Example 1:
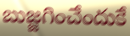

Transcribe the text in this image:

బుజ్జగించేందుకే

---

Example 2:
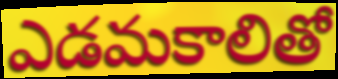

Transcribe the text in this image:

ఎడమకాలితో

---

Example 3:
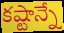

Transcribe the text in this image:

కష్టాన్నే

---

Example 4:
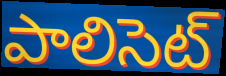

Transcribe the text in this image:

పాలిసెట్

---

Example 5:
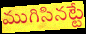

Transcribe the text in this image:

ముగిసినట్టే